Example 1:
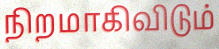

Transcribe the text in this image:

நிறமாகிவிடும்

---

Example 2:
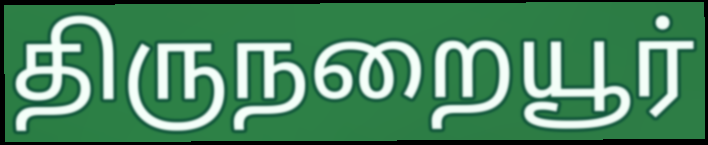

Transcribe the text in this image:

திருநறையூர்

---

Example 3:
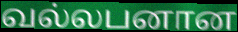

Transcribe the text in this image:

வல்லபனான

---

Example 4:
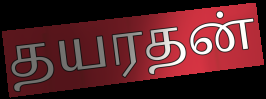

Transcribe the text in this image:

தயரதன்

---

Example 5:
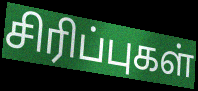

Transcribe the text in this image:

சிரிப்புகள்